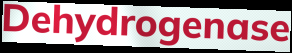
Dehydrogenase